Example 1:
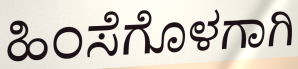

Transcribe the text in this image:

ಹಿಂಸೆಗೊಳಗಾಗಿ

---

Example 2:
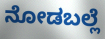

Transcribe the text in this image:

ನೋಡಬಲ್ಲೆ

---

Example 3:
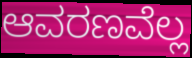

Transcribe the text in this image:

ಆವರಣವೆಲ್ಲ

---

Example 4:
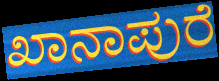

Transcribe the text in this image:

ಖಾನಾಪುರೆ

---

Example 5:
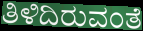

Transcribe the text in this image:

ತಿಳಿದಿರುವಂತೆ